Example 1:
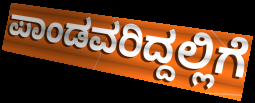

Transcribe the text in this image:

ಪಾಂಡವರಿದ್ದಲ್ಲಿಗೆ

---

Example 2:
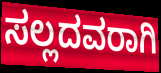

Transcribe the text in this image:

ಸಲ್ಲದವರಾಗಿ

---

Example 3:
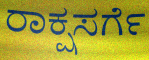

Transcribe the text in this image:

ರಾಕ್ಷಸರ್ಗೆ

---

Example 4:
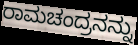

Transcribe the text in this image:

ರಾಮಚಂದ್ರನನ್ನು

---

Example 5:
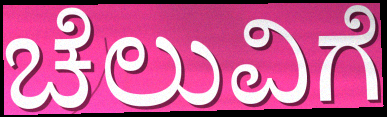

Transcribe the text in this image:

ಚೆಲುವಿಗೆ